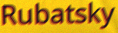
Rubatsky